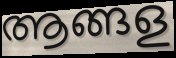
ആങ്ങള